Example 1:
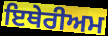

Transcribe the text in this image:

ਇਥੇਰੀਅਮ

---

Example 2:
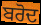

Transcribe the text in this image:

ਬਰੋਦ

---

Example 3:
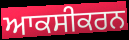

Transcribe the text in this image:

ਆਕਸੀਕਰਨ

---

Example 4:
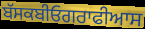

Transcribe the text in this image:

ਬੱਸਕਬੀਓਗਰਾਫੀਆਸ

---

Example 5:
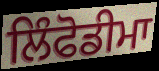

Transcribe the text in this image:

ਲਿੰਫੋਡੀਮਾ